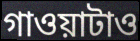
গাওয়াটাও